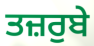
ਤਜ਼ਰੁਬੇ